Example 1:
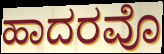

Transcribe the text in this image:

ಹಾದರವೊ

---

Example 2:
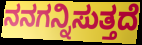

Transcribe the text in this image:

ನನಗನ್ನಿಸುತ್ತದೆ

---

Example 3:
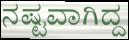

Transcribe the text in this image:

ನಷ್ಟವಾಗಿದ್ದ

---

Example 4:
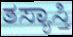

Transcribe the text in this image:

ತಸ್ಯಾಸ್ತಿ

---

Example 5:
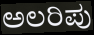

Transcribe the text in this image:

ಅಲರಿಪು